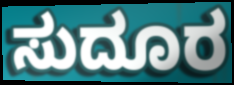
ಸುದೂರ